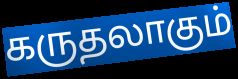
கருதலாகும்